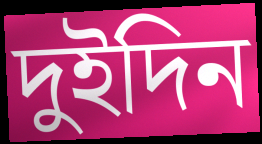
দুইদিন